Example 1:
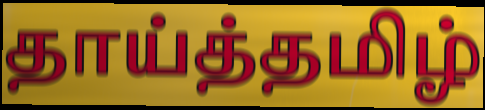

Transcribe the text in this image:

தாய்த்தமிழ்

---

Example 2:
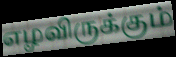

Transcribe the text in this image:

எழவிருக்கும்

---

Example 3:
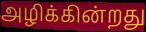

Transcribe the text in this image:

அழிக்கின்றது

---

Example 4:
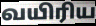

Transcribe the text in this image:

வயிரிய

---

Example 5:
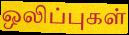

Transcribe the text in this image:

ஒலிப்புகள்